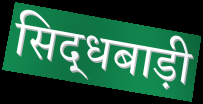
सिद्धबाड़ी